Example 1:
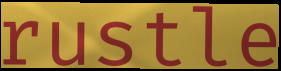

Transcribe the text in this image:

rustle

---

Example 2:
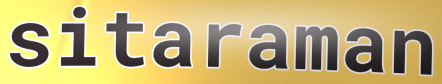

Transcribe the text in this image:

sitaraman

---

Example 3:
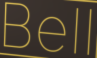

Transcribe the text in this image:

Bell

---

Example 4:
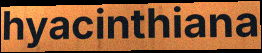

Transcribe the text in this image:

hyacinthiana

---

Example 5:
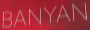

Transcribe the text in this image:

BANYAN